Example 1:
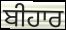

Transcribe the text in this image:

ਬੀਹਾਰ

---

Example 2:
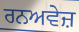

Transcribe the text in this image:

ਰਨਅਵੇਜ਼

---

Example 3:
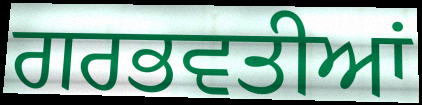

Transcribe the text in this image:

ਗਰਭਵਤੀਆਂ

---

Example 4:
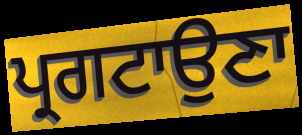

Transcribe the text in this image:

ਪ੍ਰਗਟਾਉਣਾ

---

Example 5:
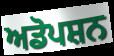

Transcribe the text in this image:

ਅਡੋਪਸ਼ਨ